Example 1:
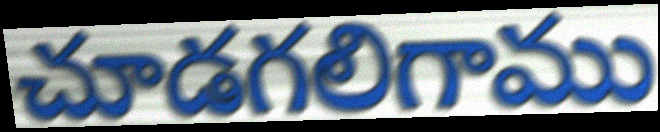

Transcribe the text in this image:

చూడగలిగాము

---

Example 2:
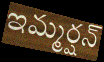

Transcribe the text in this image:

ఇమ్మర్షన్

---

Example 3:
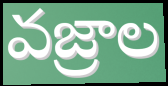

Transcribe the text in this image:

వజ్రాల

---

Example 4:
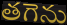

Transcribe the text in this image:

తగెను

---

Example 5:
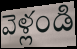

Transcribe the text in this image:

వెళ్లండి